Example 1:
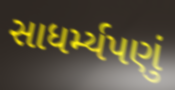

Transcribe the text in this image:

સાધર્મ્યપણું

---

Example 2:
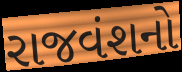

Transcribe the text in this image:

રાજવંશનો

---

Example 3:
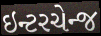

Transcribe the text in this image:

ઇન્ટરચેન્જ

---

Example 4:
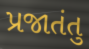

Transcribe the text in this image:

પ્રજાતંતુ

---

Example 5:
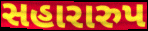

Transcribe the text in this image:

સહારારુપ